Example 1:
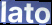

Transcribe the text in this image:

lato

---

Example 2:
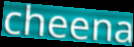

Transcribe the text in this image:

cheena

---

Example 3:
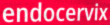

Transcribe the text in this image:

endocervix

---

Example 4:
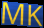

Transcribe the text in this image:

MK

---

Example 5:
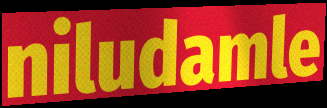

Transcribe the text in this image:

niludamle